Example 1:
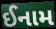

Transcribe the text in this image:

ઈનામ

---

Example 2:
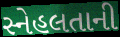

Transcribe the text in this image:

સ્નેહલતાની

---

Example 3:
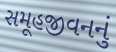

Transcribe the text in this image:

સમૂહજીવનનું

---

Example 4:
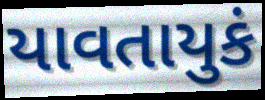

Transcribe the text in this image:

યાવતાયુકં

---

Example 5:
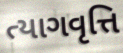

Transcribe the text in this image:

ત્યાગવૃત્તિ